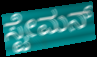
ಸ್ಟೇಮನ್